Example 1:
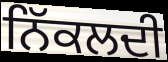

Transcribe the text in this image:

ਨਿੱਕਲਦੀ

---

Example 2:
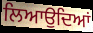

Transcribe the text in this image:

ਲਿਆਉਦਿਆਂ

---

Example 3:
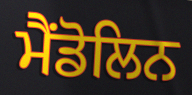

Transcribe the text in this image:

ਮੈਂਡੋਲਿਨ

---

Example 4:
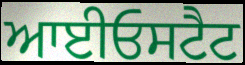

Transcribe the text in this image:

ਆਈਓਸਟੈਟ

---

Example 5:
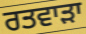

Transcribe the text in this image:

ਰਤਵਾੜਾ